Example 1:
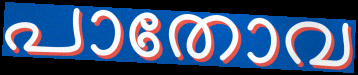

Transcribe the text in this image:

പാതോവ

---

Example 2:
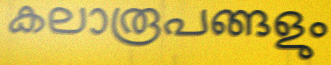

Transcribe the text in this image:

കലാരൂപങ്ങളും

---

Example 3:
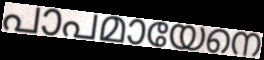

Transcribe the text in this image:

പാപമായേനെ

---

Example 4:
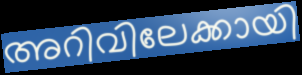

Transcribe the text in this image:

അറിവിലേക്കായി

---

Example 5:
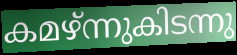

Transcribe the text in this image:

കമഴ്ന്നുകിടന്നു